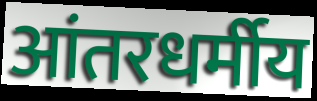
आंतरधर्मीय